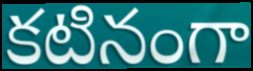
కటినంగా